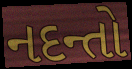
નદન્તો